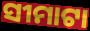
ସୀମାଟା